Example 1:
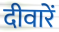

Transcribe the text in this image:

दीवारें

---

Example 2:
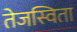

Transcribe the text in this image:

तेजस्विता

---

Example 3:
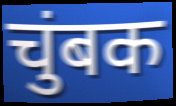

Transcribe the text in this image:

चुंबक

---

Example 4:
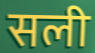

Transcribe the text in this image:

सली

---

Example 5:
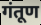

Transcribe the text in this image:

गंतूण